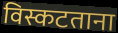
विस्कटताना